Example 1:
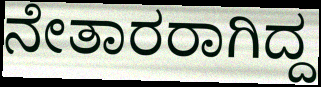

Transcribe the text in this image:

ನೇತಾರರಾಗಿದ್ದ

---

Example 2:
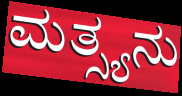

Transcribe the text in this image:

ಮತ್ಸ್ಯನು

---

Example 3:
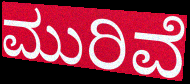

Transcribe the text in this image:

ಮುರಿವೆ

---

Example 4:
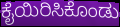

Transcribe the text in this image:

ಕೈಯಿರಿಸಿಕೊಂಡು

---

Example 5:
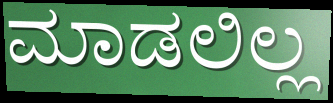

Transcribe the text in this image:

ಮಾಡಲಿಲ್ಲ